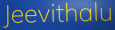
Jeevithalu